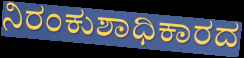
ನಿರಂಕುಶಾಧಿಕಾರದ